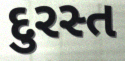
દુરસ્ત